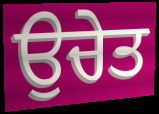
ਉਚੇਤ